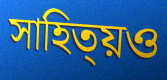
সাহিত্য়ও